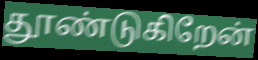
தூண்டுகிறேன்